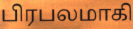
பிரபலமாகி